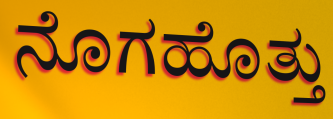
ನೊಗಹೊತ್ತು